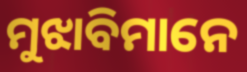
ମୁଝାବିମାନେ